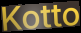
Kotto